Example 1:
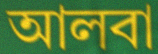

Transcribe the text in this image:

আলবা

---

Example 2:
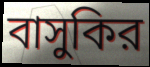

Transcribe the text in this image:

বাসুকির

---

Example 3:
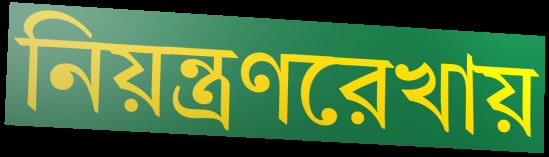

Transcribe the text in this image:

নিয়ন্ত্রণরেখায়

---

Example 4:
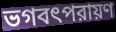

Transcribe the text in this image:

ভগবৎপরায়ণ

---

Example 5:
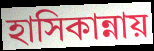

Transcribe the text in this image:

হাসিকান্নায়